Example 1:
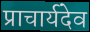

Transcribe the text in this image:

प्राचार्यदेव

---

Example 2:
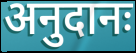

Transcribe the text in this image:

अनुदानः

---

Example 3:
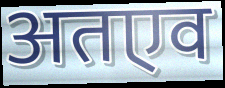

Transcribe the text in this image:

अतएव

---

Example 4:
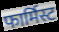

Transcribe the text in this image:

फार्मिस्ट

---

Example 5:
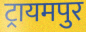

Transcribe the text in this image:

ट्रायमपुर